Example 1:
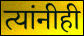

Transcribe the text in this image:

त्यांनीही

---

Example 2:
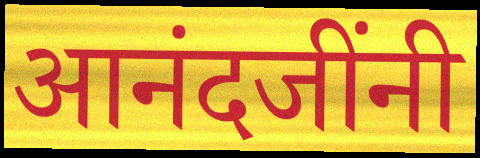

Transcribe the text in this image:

आनंदजींनी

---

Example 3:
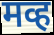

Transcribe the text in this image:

मव्ह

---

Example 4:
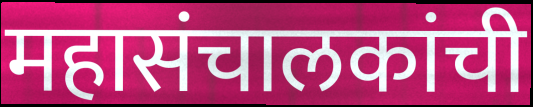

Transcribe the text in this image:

महासंचालकांची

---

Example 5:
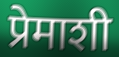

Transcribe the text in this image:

प्रेमाशी